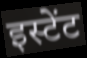
इस्टेंट